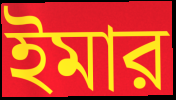
ইমার